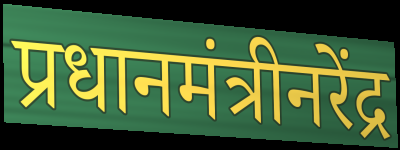
प्रधानमंत्रीनरेंद्र